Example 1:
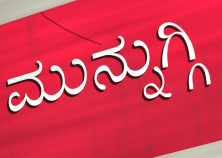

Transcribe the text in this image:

ಮುನ್ನುಗ್ಗಿ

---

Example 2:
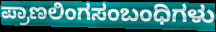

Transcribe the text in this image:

ಪ್ರಾಣಲಿಂಗಸಂಬಂಧಿಗಳು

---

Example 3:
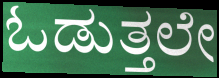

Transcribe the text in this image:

ಓಡುತ್ತಲೇ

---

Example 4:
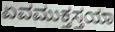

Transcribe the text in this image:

ಏವಮುಕ್ತಸ್ತಯಾ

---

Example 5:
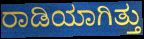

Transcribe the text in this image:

ರಾಡಿಯಾಗಿತ್ತು